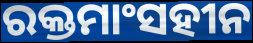
ରକ୍ତମାଂସହୀନ